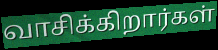
வாசிக்கிறார்கள்